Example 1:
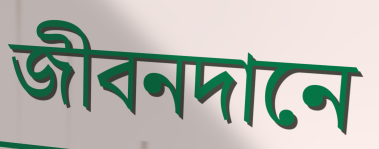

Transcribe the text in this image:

জীবনদানে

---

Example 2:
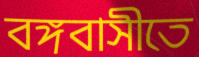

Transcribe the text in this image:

বঙ্গবাসীতে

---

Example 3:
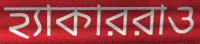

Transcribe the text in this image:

হ্যাকাররাও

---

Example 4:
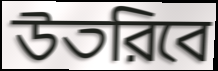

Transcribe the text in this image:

উতরিবে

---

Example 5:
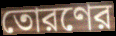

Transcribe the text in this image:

তোরণের